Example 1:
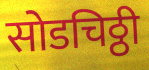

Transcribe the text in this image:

सोडचिठ्ठी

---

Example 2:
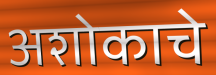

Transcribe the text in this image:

अशोकाचे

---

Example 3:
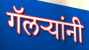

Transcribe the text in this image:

गॅलऱ्यांनी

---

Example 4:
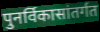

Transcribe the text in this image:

पुनर्विकासांतर्गत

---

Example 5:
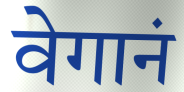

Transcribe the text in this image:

वेगानं